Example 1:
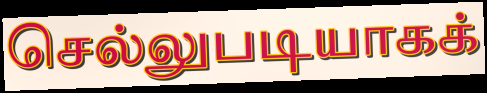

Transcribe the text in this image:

செல்லுபடியாகக்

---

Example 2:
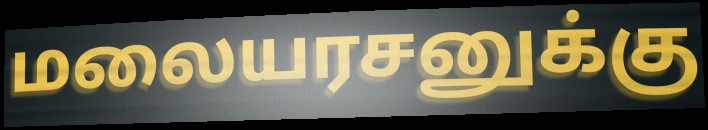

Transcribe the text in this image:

மலையரசனுக்கு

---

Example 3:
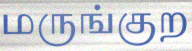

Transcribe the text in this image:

மருங்குற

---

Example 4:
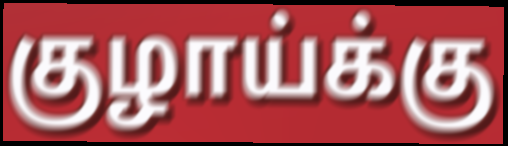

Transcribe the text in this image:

குழாய்க்கு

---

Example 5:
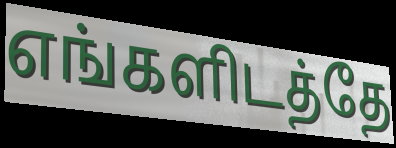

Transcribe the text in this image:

எங்களிடத்தே